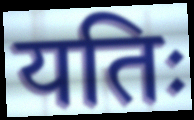
यतिः